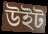
উইট